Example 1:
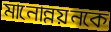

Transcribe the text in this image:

মানোন্নয়নকে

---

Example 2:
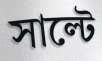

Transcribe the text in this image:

সাল্টে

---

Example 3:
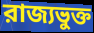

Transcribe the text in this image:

রাজ্যভুক্ত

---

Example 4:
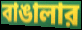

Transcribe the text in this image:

বাঙালার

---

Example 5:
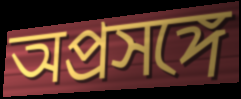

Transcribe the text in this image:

অপ্রসঙ্গে